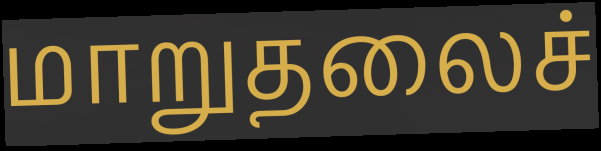
மாறுதலைச்